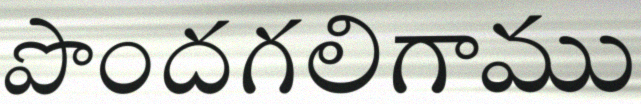
పొందగలిగాము